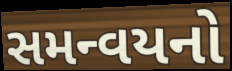
સમન્વયનો